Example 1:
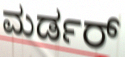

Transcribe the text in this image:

ಮರ್ಡರ್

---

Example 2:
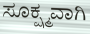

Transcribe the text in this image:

ಸೂಕ್ಷ್ಮವಾಗಿ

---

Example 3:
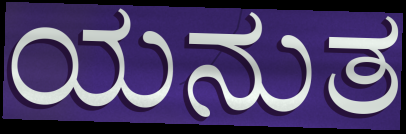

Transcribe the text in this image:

ಯನುತ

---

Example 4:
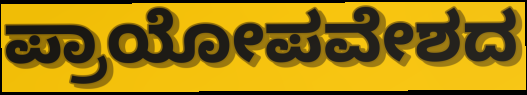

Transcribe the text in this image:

ಪ್ರಾಯೋಪವೇಶದ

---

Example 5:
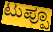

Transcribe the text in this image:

ಟುಪ್ಪೂ